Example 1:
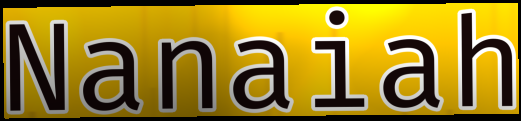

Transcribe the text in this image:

Nanaiah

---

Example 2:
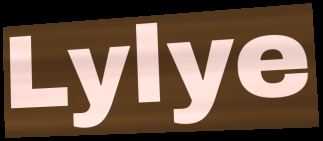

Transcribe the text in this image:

Lylye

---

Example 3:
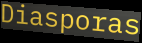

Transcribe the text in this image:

Diasporas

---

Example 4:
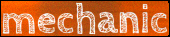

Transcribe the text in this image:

mechanic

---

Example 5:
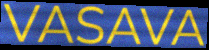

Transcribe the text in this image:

VASAVA